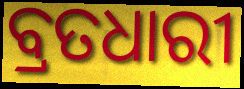
ବ୍ରତଧାରୀ